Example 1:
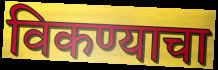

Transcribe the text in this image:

विकण्याचा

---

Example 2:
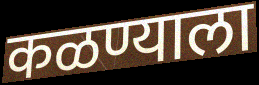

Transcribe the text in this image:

कळण्याला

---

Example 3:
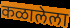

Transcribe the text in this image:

कळालेला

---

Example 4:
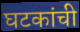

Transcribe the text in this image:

घटकांची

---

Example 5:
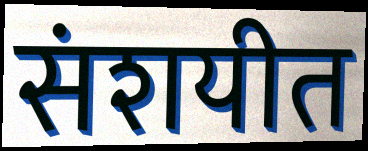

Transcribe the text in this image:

संशयीत